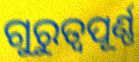
ଗୁରୁତ୍ବପୂର୍ଣ୍ଣ